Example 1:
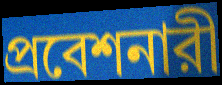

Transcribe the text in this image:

প্রবেশনারী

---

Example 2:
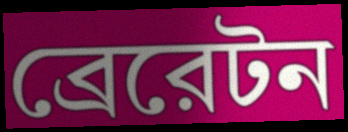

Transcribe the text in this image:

ব্রেরেটন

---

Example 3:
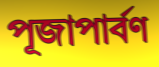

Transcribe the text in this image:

পূজাপার্বণ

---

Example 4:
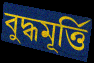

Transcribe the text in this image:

বুদ্ধমূর্ত্তি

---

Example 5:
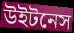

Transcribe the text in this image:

উইটনেস